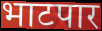
भाटपार